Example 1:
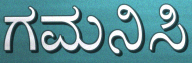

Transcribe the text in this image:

ಗಮನಿಸಿ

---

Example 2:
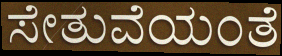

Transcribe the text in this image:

ಸೇತುವೆಯಂತೆ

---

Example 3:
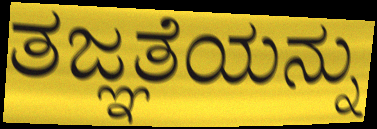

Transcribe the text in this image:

ತಜ್ಞತೆಯನ್ನು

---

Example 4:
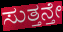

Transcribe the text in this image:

ಸುತ್ತನ್ತೇ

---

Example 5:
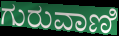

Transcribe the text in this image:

ಗುರುವಾಣಿ